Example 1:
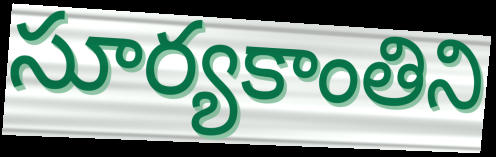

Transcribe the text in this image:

సూర్యకాంతిని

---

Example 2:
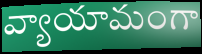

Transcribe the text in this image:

వ్యాయామంగా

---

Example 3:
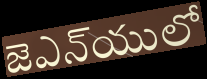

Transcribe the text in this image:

జెఎన్‌యులో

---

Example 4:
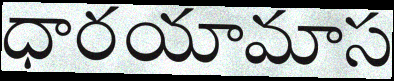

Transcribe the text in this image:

ధారయామాస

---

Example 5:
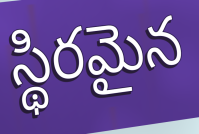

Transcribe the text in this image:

స్థిరమైన